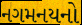
નગમનયનો